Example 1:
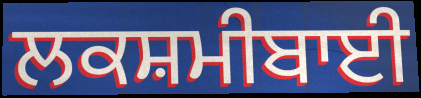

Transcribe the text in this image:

ਲਕਸ਼ਮੀਬਾਈ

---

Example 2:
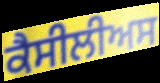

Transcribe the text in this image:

ਕੈਸੀਲੀਅਸ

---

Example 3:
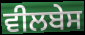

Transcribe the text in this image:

ਵੀਲਬੇਸ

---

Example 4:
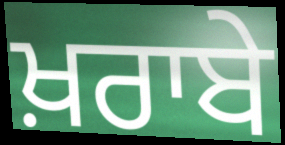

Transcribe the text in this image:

ਖ਼ਰਾਬੇ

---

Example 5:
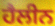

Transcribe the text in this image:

ਹੈਲੀਨ